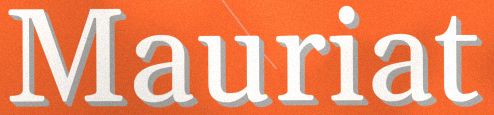
Mauriat